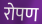
रोपण